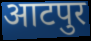
आटपुर